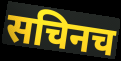
सचिनच